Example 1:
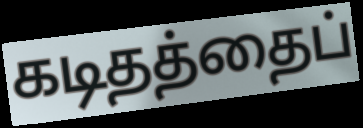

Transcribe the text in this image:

கடிதத்தைப்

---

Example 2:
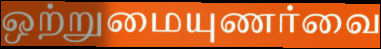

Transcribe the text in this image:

ஒற்றுமையுணர்வை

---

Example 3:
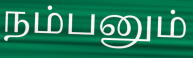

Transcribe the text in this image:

நம்பனும்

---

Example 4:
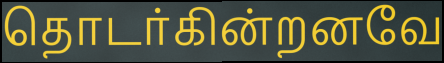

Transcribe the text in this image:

தொடர்கின்றனவே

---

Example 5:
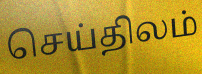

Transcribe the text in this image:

செய்திலம்